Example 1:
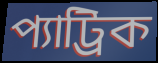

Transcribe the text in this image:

প্যাট্রিক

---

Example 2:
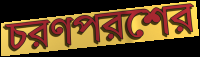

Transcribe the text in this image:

চরণপরশের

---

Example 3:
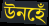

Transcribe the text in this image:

উনহেঁ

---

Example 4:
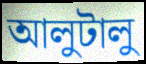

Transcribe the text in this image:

আলুটালু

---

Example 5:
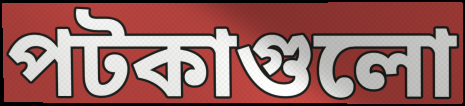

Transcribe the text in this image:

পটকাগুলো